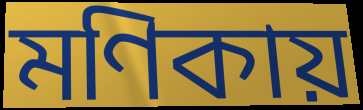
মণিকায়